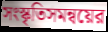
সংস্কৃতিসমন্বয়ের